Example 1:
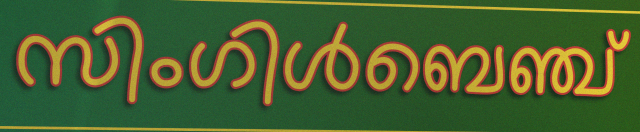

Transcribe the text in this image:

സിംഗിൾബെഞ്ച്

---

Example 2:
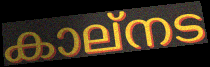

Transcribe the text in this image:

കാല്നട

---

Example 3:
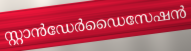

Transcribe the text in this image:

സ്റ്റാൻഡേർഡൈസേഷൻ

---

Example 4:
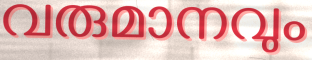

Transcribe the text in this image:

വരുമാനവും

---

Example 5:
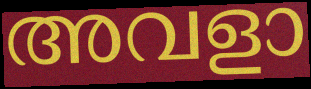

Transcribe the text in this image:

അവളാ